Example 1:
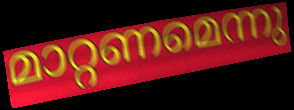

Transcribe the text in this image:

മാറ്റണമെന്നു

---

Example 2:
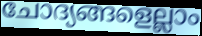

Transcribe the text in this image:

ചോദ്യങ്ങളെല്ലാം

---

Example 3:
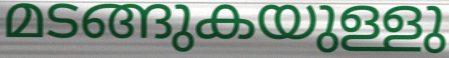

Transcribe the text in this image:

മടങ്ങുകയുള്ളു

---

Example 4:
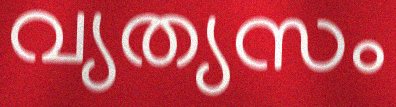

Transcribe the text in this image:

വ്യത്യസം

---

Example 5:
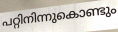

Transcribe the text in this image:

പറ്റിനിന്നുകൊണ്ടും